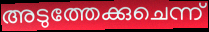
അടുത്തേക്കുചെന്ന്